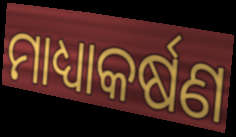
ମାଧ୍ୟାକର୍ଷଣ